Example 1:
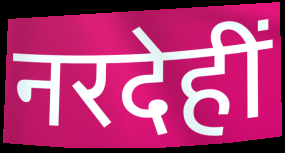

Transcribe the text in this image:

नरदेहीं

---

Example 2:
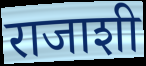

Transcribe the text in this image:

राजाशी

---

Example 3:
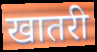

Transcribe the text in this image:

खातरी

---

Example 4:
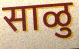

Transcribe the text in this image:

साळु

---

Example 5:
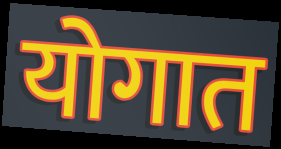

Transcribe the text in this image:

योगात